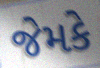
જેમકે